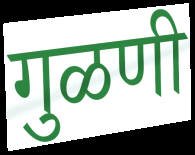
गुळणी